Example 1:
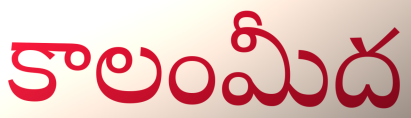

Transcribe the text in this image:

కాలంమీద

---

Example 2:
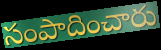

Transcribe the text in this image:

సంపాదించారు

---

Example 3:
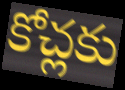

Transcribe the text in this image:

కోచ్లకు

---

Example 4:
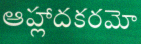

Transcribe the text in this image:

ఆహ్లాదకరమో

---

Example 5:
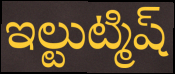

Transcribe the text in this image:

ఇల్టుట్మిష్